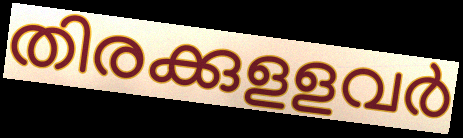
തിരക്കുളളവർ